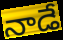
నాడే